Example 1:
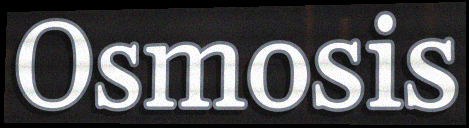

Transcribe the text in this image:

Osmosis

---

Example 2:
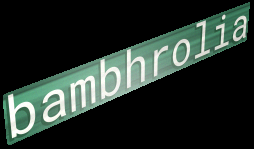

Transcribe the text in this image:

bambhrolia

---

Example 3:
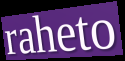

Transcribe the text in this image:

raheto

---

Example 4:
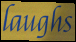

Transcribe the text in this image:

laughs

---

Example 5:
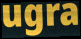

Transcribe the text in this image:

ugra